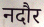
नदौर